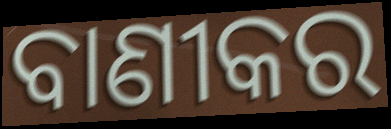
ବାଣୀକର